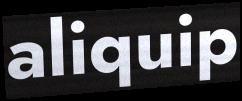
aliquip